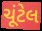
ચૂંટેલ